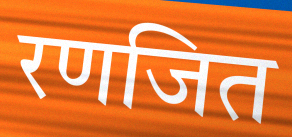
रणजित